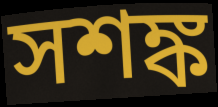
সশঙ্ক